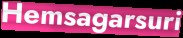
Hemsagarsuri